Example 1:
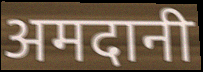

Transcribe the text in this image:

अमदानी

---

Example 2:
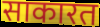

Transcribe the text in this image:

साकारत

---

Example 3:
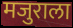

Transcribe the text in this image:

मजुराला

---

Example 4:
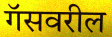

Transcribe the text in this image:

गॅसवरील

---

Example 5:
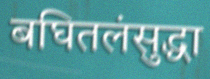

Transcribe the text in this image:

बघितलंसुद्धा